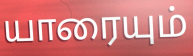
யாரையும்